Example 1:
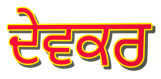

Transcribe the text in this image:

ਦੇਵਕਰ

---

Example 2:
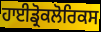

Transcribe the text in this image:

ਹਾਈਡ੍ਰੋਕਲੋਰਿਕਸ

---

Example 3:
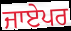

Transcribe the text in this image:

ਜਾਏਪਰ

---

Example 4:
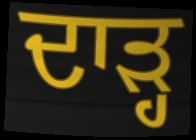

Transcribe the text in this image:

ਦਾੜ੍ਹ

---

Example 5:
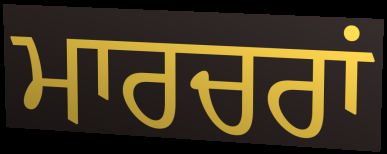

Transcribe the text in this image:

ਮਾਰਚਰਾਂ